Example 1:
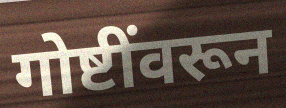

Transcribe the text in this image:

गोष्टींवरून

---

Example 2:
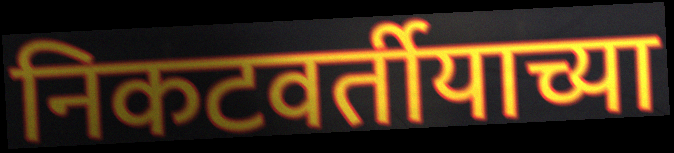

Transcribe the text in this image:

निकटवर्तीयाच्या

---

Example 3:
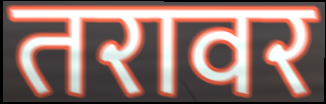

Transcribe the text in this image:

तरावर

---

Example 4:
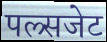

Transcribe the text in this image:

पल्सजेट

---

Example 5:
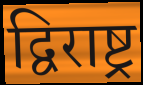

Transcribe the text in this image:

द्विराष्ट्र